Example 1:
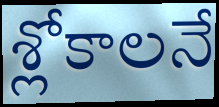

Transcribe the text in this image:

శ్లోకాలనే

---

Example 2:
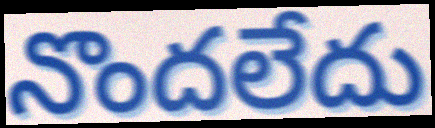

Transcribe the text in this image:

నొందలేదు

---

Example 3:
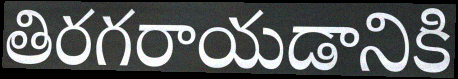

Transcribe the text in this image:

తిరగరాయడానికి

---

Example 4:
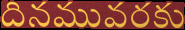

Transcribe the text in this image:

దినమువరకు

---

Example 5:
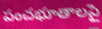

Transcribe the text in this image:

పంచభూతాలపై